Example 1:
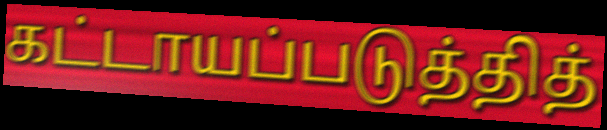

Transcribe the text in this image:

கட்டாயப்படுத்தித்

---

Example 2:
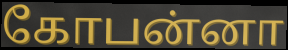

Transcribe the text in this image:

கோபன்னா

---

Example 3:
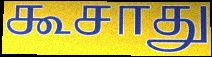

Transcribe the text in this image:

கூசாது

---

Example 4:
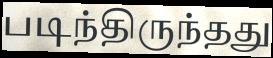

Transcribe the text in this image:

படிந்திருந்தது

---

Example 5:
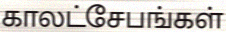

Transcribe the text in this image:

காலட்சேபங்கள்